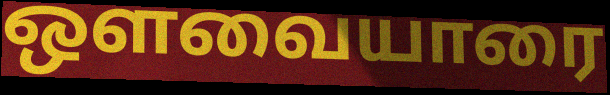
ஔவையாரை